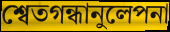
শ্বেতগন্ধানুলেপনা